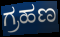
ಗ್ರಹಣ